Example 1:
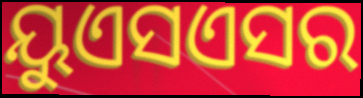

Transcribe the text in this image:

ୟୁଏସଏସର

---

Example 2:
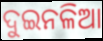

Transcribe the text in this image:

ଦୁଇନଳିଆ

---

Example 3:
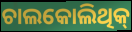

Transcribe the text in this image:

ଚାଲକୋଲିଥିକ୍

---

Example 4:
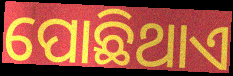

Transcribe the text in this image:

ପୋଛିଥାଏ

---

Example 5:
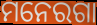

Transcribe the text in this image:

ମନେରଗା